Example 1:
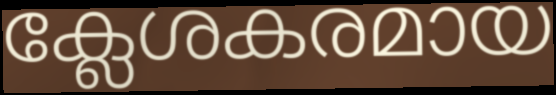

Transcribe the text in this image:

ക്ലേശകരമായ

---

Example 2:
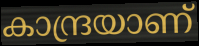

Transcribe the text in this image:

കാന്ദ്രയാണ്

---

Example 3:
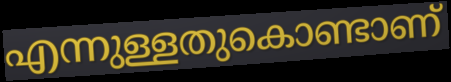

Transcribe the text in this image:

എന്നുള്ളതുകൊണ്ടാണ്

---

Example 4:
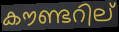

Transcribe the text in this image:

കൗണ്ടറില്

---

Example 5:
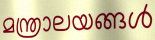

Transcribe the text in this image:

മന്ത്രാലയങ്ങൾ